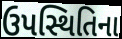
ઉપસ્થિતિના